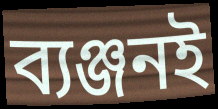
ব্যঞ্জনই